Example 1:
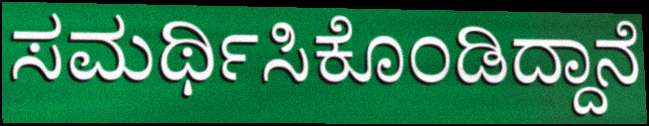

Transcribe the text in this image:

ಸಮರ್ಥಿಸಿಕೊಂಡಿದ್ದಾನೆ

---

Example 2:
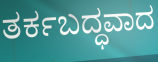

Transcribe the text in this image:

ತರ್ಕಬದ್ಧವಾದ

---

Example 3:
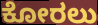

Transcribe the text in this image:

ಕೋರಲು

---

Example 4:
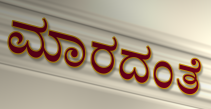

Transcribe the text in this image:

ಮಾರದಂತೆ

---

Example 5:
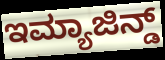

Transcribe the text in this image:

ಇಮ್ಯಾಜಿನ್ಡ್